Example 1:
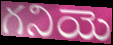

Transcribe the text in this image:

గనియె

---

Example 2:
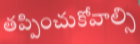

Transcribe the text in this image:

తప్పించుకోవాల్సి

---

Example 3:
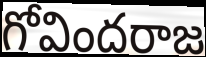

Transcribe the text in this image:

గోవిందరాజ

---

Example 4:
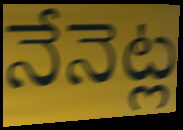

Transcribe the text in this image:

నేనెట్ల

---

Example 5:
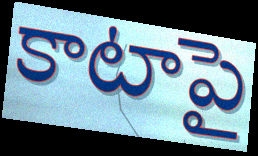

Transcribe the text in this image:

కాటాపై